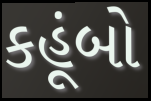
કહૂંબો